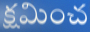
క్షమించ